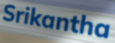
Srikantha